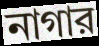
নাগার